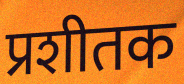
प्रशीतक